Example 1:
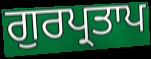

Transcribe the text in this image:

ਗੁਰਪ੍ਰਤਾਪ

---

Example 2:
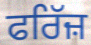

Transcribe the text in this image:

ਫਰਿੱਜ਼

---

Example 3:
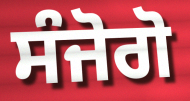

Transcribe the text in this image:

ਸੰਜੋਗੋ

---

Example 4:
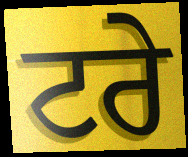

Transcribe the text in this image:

ਟਰੇ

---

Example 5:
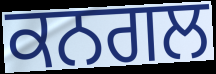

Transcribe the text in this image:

ਕਨਗਲ